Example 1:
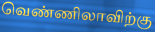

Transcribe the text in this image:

வெண்ணிலாவிற்கு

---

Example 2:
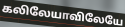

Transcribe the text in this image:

கலிலேயாவிலேயே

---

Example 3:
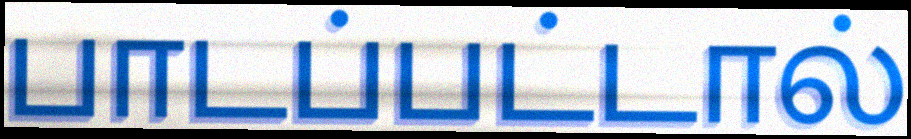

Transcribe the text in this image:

பாடப்பட்டால்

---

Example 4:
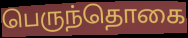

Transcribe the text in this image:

பெருந்தொகை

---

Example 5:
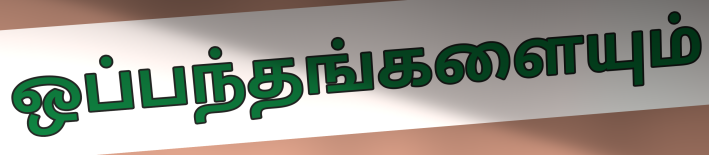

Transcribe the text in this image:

ஒப்பந்தங்களையும்